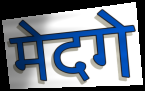
मेदगे